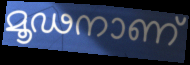
മൂഢനാണ്